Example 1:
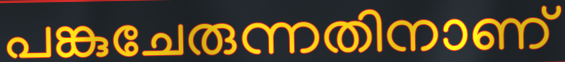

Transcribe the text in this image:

പങ്കുചേരുന്നതിനാണ്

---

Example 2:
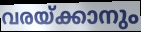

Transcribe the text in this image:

വരയ്ക്കാനും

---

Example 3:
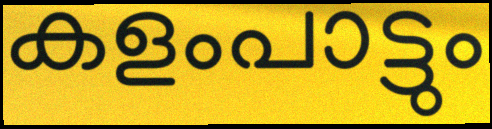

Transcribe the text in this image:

കളംപാട്ടും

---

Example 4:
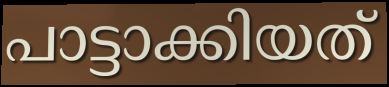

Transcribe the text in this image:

പാട്ടാക്കിയത്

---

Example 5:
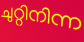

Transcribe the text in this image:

ചുറ്റിനിന്ന